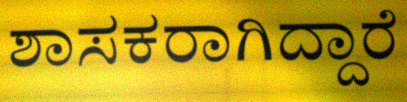
ಶಾಸಕರಾಗಿದ್ದಾರೆ